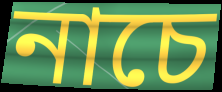
নাচে